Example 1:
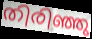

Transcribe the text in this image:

തിരിഞ്ഞു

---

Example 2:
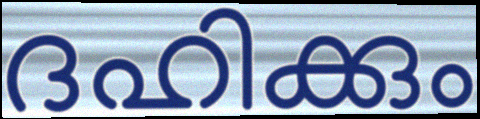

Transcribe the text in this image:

ദഹിക്കും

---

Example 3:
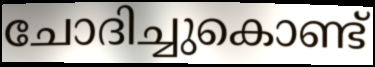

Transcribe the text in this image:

ചോദിച്ചുകൊണ്ട്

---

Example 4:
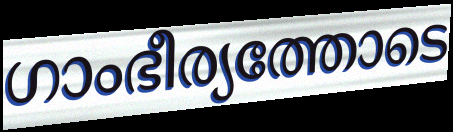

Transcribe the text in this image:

ഗാംഭീര്യത്തോടെ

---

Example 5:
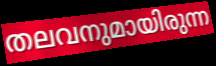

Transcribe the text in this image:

തലവനുമായിരുന്ന